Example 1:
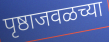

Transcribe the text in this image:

पृष्ठाजवळच्या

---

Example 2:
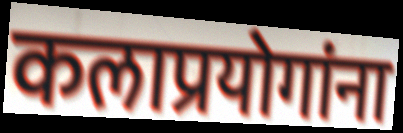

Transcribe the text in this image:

कलाप्रयोगांना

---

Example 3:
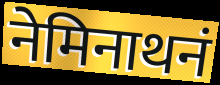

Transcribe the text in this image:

नेमिनाथनं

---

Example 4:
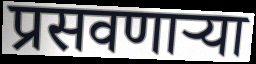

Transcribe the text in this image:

प्रसवणाऱ्या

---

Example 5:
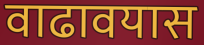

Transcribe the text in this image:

वाढावयास